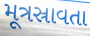
મૂત્રસ્રાવતા